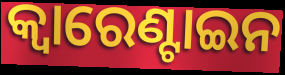
କ୍ୱାରେଣ୍ଟାଇନ